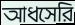
আধসেরি